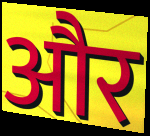
और